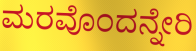
ಮರವೊಂದನ್ನೇರಿ